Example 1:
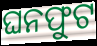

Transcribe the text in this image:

ଘନଫୁଟ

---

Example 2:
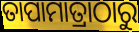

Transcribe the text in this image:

ତାପାମାତ୍ରାଠାରୁ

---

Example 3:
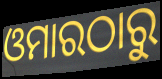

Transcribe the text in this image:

ଓମାରଠାରୁ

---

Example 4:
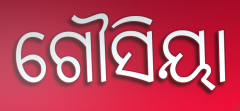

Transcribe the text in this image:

ଗୌସିୟା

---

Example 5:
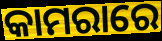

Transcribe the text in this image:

କାମରାରେ